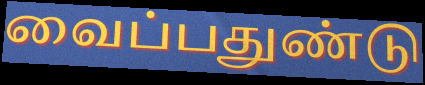
வைப்பதுண்டு